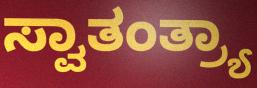
ಸ್ವಾತಂತ್ರ್ಯಾ